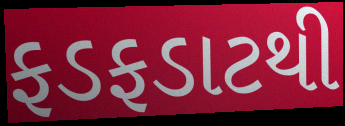
ફડફડાટથી